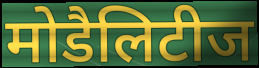
मोडैलिटीज